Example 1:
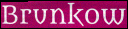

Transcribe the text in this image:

Brunkow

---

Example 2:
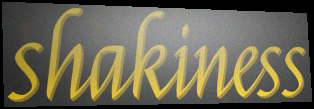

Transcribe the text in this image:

shakiness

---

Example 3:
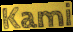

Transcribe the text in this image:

Kami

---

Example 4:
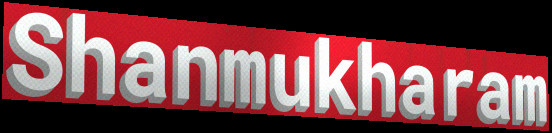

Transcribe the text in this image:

Shanmukharam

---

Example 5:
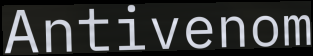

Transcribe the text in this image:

Antivenom